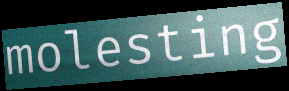
molesting